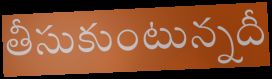
తీసుకుంటున్నదీ